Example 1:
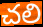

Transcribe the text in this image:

చలి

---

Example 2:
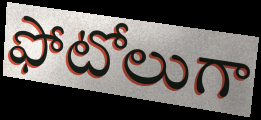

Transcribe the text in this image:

ఫోటోలుగా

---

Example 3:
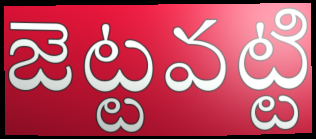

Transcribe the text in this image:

జెట్టవట్టి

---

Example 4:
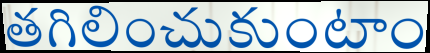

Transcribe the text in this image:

తగిలించుకుంటాం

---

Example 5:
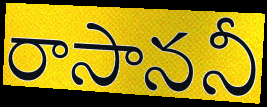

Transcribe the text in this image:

రాసాననీ